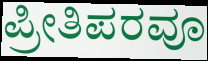
ಪ್ರೀತಿಪರವೂ